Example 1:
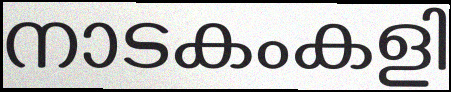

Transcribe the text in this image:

നാടകംകളി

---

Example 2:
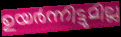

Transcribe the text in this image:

ഉയർന്നിട്ടുമില്ല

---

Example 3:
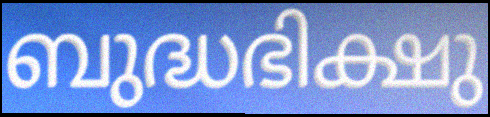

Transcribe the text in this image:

ബുദ്ധഭിക്ഷു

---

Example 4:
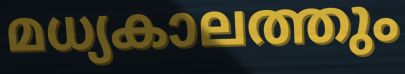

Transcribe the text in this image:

മധ്യകാലത്തും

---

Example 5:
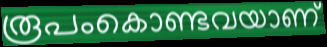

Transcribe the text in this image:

രൂപംകൊണ്ടവയാണ്